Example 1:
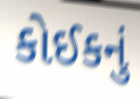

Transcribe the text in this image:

કોઈકનું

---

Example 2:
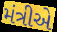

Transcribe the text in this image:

મંત્રીએ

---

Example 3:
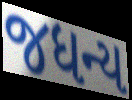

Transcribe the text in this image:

જધન્ય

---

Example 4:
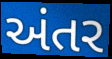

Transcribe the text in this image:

અંતર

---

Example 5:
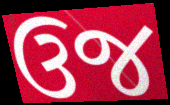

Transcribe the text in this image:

ઉજ